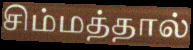
சிம்மத்தால்